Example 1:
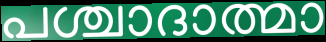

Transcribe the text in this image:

പശ്ചാദാത്മാ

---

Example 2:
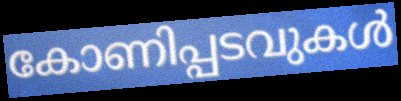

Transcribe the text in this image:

കോണിപ്പടവുകൾ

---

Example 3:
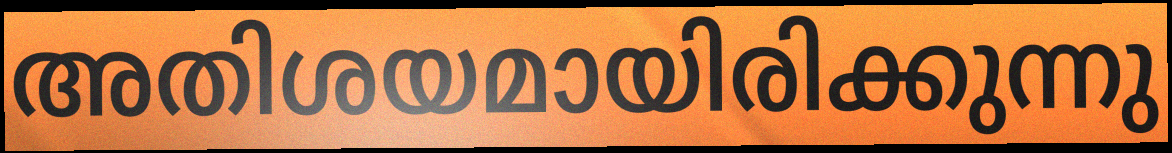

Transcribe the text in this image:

അതിശയമായിരിക്കുന്നു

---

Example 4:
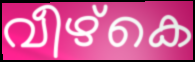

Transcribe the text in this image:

വീഴ്കെ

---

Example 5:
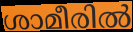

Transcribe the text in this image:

ശാമീരിൽ